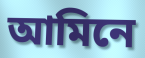
আমিনে